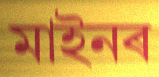
মাইনৰ